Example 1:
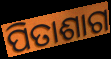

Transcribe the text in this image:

ପିତାଶାଗ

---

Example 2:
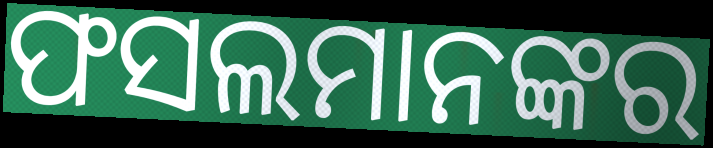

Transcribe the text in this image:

ଫସଲମାନଙ୍କର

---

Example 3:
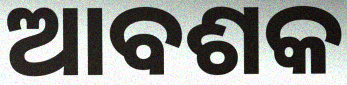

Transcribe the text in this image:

ଆବଶକ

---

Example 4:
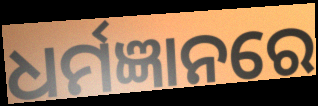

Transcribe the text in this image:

ଧର୍ମଜ୍ଞାନରେ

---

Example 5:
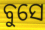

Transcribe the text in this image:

ବୁସେ